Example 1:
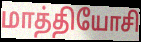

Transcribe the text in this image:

மாத்தியோசி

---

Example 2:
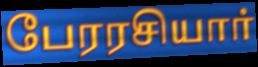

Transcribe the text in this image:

பேரரசியார்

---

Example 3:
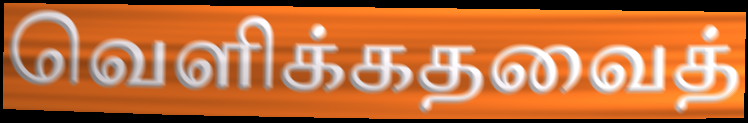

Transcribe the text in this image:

வெளிக்கதவைத்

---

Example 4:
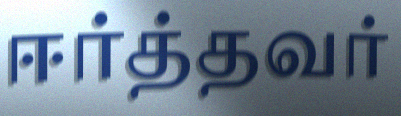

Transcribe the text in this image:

ஈர்த்தவர்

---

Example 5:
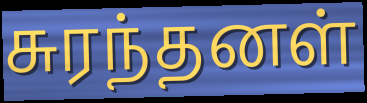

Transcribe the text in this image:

சுரந்தனள்